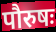
पौरुषः